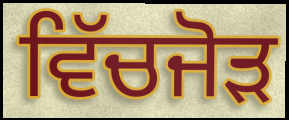
ਵਿੱਚਜੋੜ